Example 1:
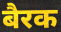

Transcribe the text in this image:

बैरक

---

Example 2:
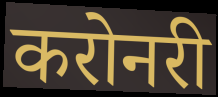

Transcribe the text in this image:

करोनरी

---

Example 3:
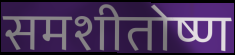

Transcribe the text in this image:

समशीतोष्ण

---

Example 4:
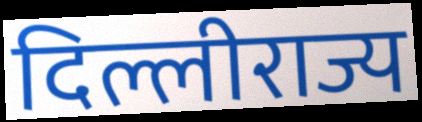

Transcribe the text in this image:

दिल्लीराज्य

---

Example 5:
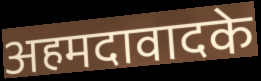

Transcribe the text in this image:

अहमदावादके